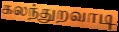
கலந்துறவாடி